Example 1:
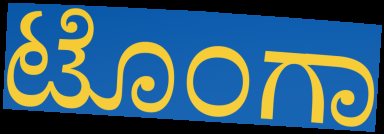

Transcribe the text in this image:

ಟೊಂಗಾ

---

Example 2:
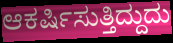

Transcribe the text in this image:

ಆಕರ್ಷಿಸುತ್ತಿದ್ದುದು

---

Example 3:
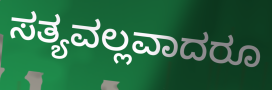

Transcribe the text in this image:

ಸತ್ಯವಲ್ಲವಾದರೂ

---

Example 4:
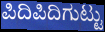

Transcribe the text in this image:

ಪಿದಿಪಿದಿಗುಟ್ಟು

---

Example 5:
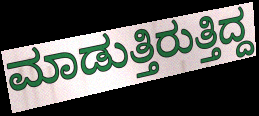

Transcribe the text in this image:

ಮಾಡುತ್ತಿರುತ್ತಿದ್ದ